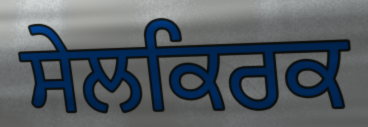
ਸੇਲਕਿਰਕ